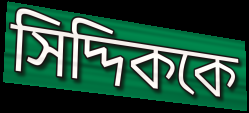
সিদ্দিককে